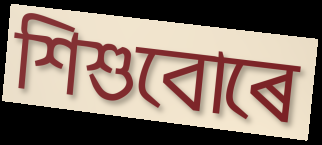
শিশুবোৰে